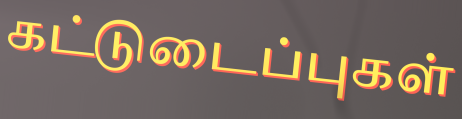
கட்டுடைப்புகள்